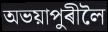
অভয়াপুৰীলৈ